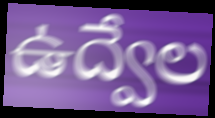
ఉద్వేల